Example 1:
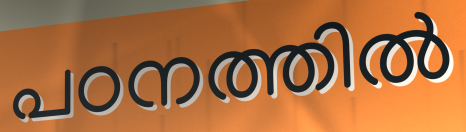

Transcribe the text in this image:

പഠനത്തിൽ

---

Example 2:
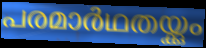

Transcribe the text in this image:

പരമാർഥതയ്ക്കും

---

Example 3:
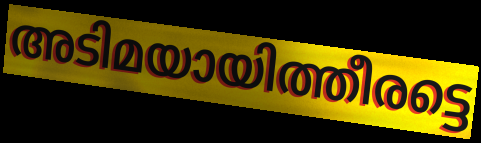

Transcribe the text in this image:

അടിമയായിത്തീരട്ടെ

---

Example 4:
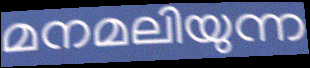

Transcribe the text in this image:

മനമലിയുന്ന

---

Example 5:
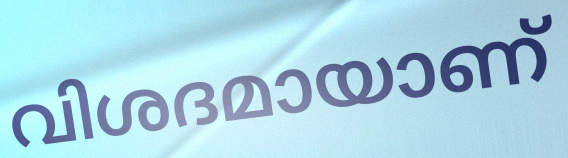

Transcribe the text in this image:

വിശദമായാണ്